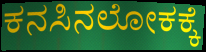
ಕನಸಿನಲೋಕಕ್ಕೆ